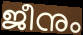
ജീനും